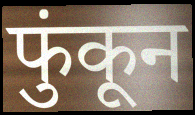
फुंकून